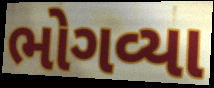
ભોગવ્યા